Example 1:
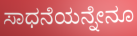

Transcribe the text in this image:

ಸಾಧನೆಯನ್ನೇನೂ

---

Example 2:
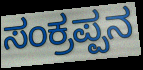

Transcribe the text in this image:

ಸಂಕ್ರಪ್ಪನ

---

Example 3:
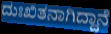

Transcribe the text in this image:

ದುಃಖಿತನಾಗಿದ್ದಾನೆ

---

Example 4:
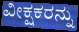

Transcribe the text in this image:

ವೀಕ್ಷಕರನ್ನು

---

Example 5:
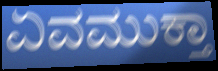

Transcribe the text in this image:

ಏವಮುಕ್ತಾ